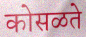
कोसळते